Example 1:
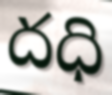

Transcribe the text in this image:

దధి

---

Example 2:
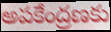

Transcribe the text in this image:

అపకేంద్రణకు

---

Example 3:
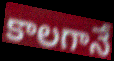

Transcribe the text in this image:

కాలగానే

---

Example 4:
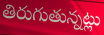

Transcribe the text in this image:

తిరుగుతున్నట్లు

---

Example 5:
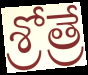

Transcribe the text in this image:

శ్రోత్రే